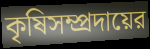
কৃষিসম্প্রদায়ের